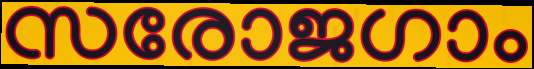
സരോജഗാം